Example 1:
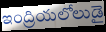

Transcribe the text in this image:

ఇంద్రియలోలుడై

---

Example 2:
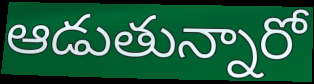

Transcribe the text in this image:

ఆడుతున్నారో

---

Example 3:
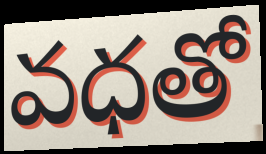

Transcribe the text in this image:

వధతో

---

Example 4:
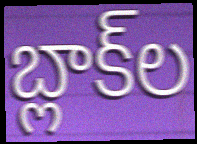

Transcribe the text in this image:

బ్లాక్‌ల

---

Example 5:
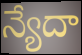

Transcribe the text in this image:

న్యేదా